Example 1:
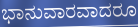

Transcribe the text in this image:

ಭಾನುವಾರವಾದರೂ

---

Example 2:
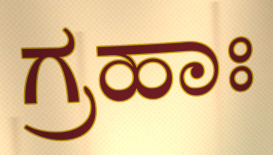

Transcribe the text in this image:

ಗ್ರಹಾಃ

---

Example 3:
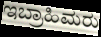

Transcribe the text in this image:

ಇಬ್ರಾಹಿಮರು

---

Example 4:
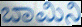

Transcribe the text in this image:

ಬಾಮಿನಿ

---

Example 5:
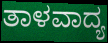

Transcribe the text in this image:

ತಾಳವಾದ್ಯ